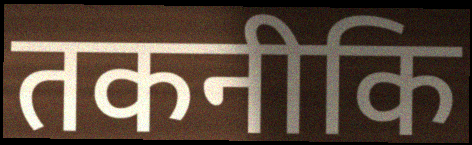
तकनीकि